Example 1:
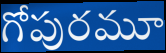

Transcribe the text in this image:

గోపురమూ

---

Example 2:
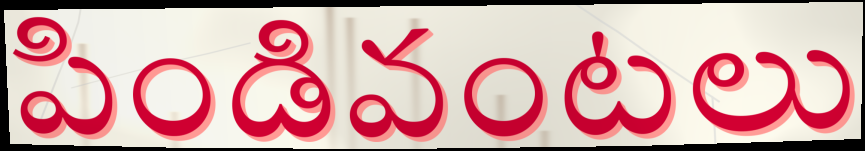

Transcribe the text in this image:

పిండివంటలు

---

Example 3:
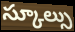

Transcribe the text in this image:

స్కూల్సు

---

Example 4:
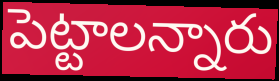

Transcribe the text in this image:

పెట్టాలన్నారు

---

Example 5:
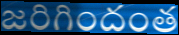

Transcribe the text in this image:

జరిగిందంత